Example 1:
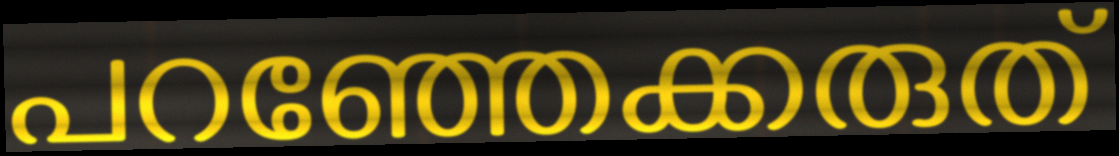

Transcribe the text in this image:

പറഞ്ഞേക്കരുത്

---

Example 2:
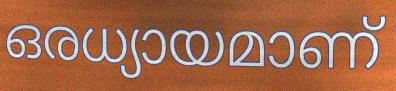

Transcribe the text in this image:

ഒരധ്യായമാണ്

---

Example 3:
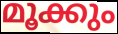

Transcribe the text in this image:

മൂക്കും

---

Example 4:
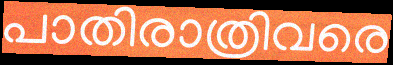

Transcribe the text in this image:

പാതിരാത്രിവരെ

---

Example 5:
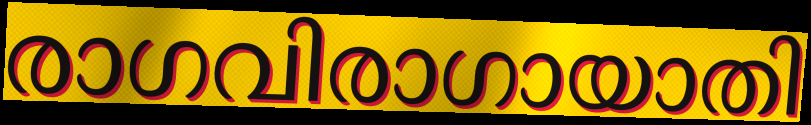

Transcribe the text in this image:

രാഗവിരാഗായാതി